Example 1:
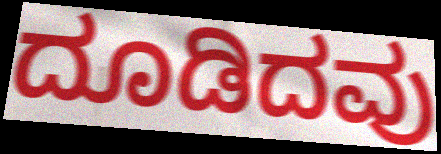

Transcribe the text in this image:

ದೂಡಿದವು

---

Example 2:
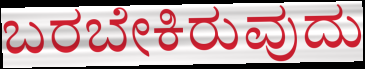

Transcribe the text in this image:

ಬರಬೇಕಿರುವುದು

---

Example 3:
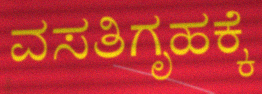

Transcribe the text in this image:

ವಸತಿಗೃಹಕ್ಕೆ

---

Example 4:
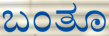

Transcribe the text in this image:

ಬಂತೂ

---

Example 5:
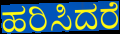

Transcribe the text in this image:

ಹರಿಸಿದರೆ